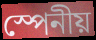
স্পেনীয়